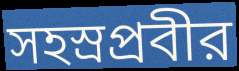
সহস্রপ্রবীর